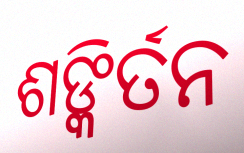
ଶଙ୍କିର୍ତନ